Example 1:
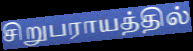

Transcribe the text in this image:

சிறுபராயத்தில்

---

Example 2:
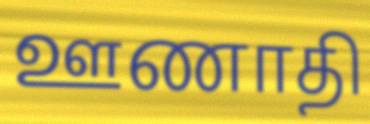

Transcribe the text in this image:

ஊணாதி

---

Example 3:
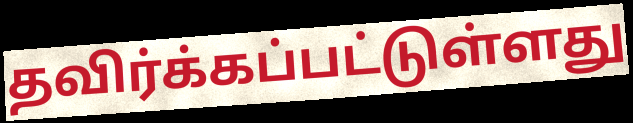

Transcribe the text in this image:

தவிர்க்கப்பட்டுள்ளது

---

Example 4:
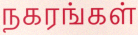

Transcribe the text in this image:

நகரங்கள்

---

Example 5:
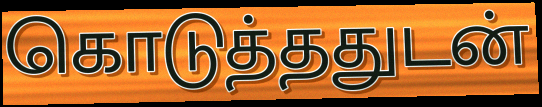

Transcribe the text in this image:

கொடுத்ததுடன்